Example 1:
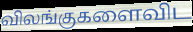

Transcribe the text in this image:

விலங்குகளைவிட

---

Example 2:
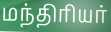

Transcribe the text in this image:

மந்திரியர்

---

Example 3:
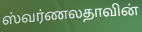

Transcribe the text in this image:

ஸ்வர்ணலதாவின்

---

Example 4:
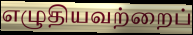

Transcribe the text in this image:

எழுதியவற்றைப்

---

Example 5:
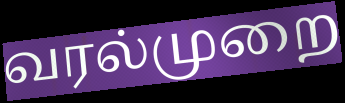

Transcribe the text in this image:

வரல்முறை